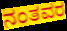
ನಂತವರ